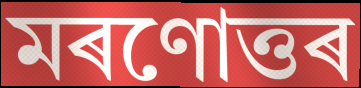
মৰণোত্তৰ